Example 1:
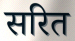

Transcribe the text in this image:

सरित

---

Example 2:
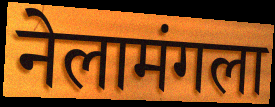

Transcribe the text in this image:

नेलामंगला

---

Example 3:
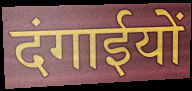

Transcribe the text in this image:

दंगाईयों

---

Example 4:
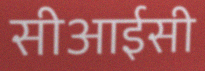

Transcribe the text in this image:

सीआईसी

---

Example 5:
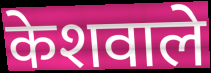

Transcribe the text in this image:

केशवाले